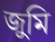
জুমি